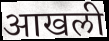
आखली